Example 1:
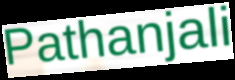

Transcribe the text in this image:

Pathanjali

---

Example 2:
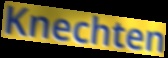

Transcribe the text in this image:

Knechten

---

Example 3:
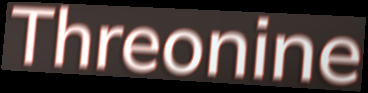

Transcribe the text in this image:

Threonine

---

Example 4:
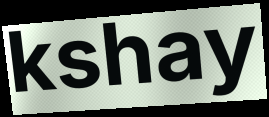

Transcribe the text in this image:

kshay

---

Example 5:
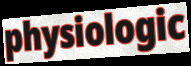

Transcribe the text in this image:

physiologic